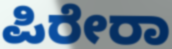
ಪಿರೇರಾ